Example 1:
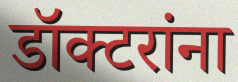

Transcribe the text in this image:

डॉक्टरांना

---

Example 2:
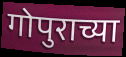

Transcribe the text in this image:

गोपुराच्या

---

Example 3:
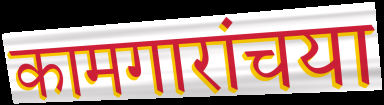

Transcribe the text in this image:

कामगारांचया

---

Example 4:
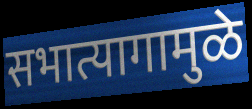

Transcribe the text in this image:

सभात्यागामुळे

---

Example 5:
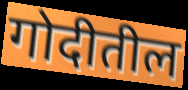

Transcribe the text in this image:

गोदीतील